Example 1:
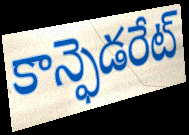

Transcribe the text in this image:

కాన్ఫెడరేట్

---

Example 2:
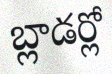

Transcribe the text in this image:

బ్లాడర్లో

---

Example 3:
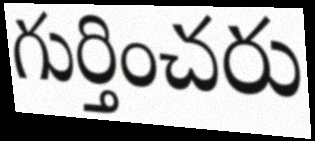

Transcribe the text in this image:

గుర్తించరు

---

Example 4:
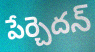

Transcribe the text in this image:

పేర్చెదన్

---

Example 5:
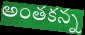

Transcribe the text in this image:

అంతకన్న